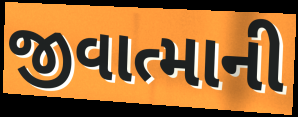
જીવાત્માની